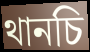
থানচি